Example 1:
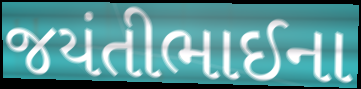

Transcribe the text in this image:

જયંતીભાઈના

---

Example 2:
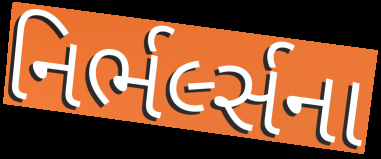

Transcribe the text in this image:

નિર્ભર્લ્સના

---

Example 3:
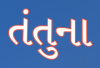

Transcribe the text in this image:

તંતુના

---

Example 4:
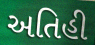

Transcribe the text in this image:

અતિહી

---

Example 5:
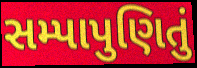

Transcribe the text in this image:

સમ્પાપુણિતું